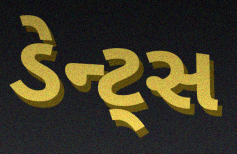
ડેન્ટ્સ